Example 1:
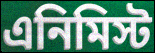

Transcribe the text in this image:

এনিমিস্ট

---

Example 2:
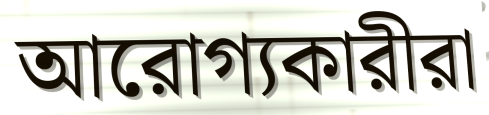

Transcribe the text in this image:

আরোগ্যকারীরা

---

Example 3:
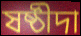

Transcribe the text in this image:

ষষ্ঠীদা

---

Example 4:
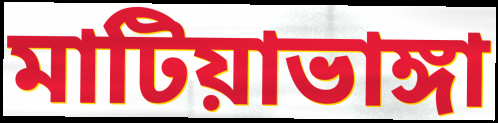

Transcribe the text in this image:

মাটিয়াভাঙ্গা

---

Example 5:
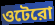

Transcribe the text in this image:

ওটেরো